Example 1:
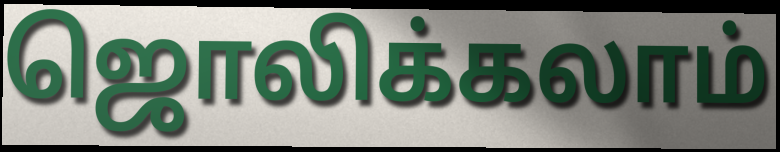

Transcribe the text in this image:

ஜொலிக்கலாம்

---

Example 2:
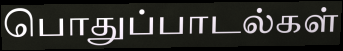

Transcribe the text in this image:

பொதுப்பாடல்கள்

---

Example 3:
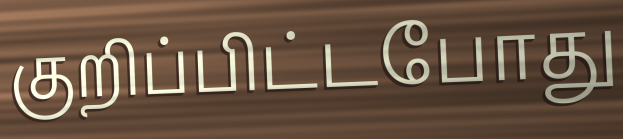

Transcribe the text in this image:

குறிப்பிட்டபோது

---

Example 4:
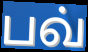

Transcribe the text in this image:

பவ்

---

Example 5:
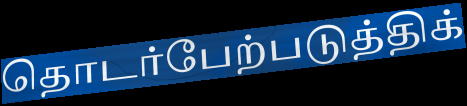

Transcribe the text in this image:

தொடர்பேற்படுத்திக்